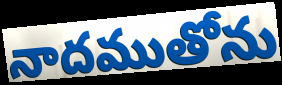
నాదముతోను